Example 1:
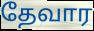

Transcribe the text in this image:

தேவார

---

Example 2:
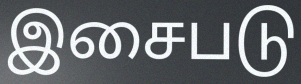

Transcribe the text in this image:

இசைபடு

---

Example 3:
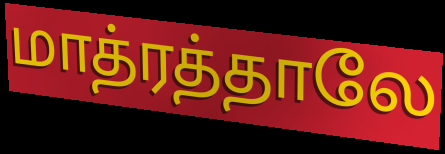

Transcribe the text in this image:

மாத்ரத்தாலே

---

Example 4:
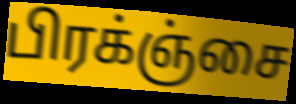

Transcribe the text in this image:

பிரக்ஞ்சை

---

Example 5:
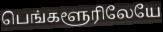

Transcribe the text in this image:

பெங்களூரிலேயே